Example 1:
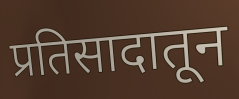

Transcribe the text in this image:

प्रतिसादातून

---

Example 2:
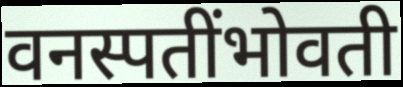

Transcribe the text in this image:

वनस्पतींभोवती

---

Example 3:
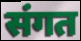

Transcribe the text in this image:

संगत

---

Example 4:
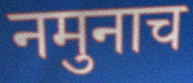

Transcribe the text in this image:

नमुनाच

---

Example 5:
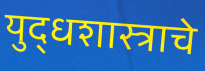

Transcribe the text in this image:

युद्धशास्त्राचे